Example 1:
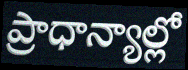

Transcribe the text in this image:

ప్రాధాన్యాల్లో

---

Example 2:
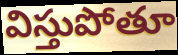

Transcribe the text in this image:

విస్తుపోతూ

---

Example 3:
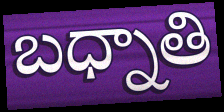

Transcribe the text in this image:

బధ్నాతి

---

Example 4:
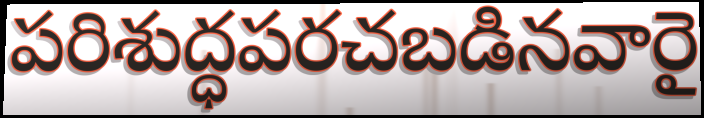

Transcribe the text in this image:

పరిశుద్ధపరచబడినవారై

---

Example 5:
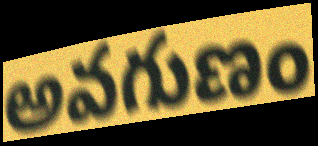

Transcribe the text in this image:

అవగుణం